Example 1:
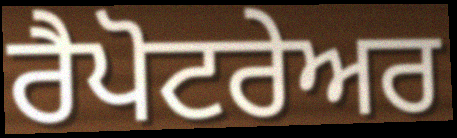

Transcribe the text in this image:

ਰੈਪੋਟਰੇਅਰ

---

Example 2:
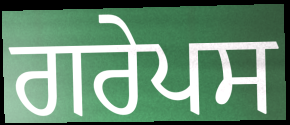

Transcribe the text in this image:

ਗਰੇਪਸ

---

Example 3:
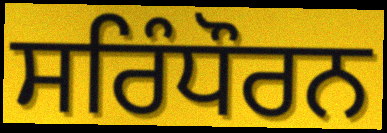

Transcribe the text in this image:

ਸਰਿੰਧੌਰਨ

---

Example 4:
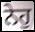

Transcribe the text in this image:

ਨੇਹੁ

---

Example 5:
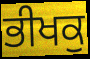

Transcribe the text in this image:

ਭੀਖਕੁ